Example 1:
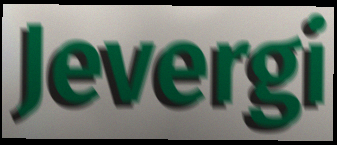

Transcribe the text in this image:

Jevergi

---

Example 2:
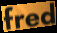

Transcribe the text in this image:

fred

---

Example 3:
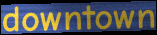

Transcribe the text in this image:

downtown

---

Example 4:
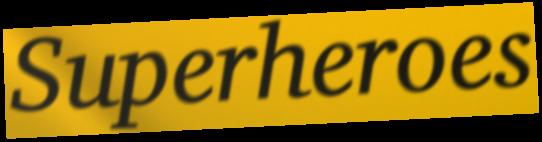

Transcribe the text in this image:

Superheroes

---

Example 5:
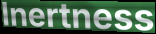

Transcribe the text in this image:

Inertness